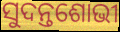
ସୁଦନ୍ତଶୋଭୀ